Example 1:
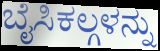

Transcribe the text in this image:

ಬೈಸಿಕಲ್ಗಳನ್ನು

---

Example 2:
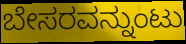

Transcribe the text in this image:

ಬೇಸರವನ್ನುಂಟು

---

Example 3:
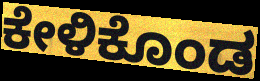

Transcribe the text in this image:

ಕೇಳಿಕೊಂಡ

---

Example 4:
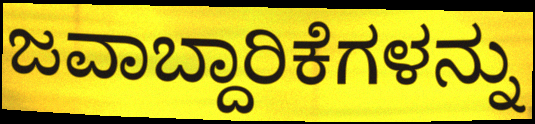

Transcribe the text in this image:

ಜವಾಬ್ದಾರಿಕೆಗಳನ್ನು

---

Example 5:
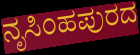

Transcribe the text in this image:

ನೃಸಿಂಹಪುರದ